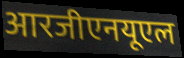
आरजीएनयूएल